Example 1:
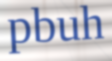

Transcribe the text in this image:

pbuh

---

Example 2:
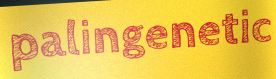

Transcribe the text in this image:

palingenetic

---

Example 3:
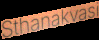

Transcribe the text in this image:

Sthanakvasi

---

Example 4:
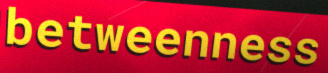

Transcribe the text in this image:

betweenness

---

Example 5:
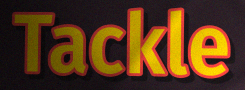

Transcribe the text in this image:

Tackle